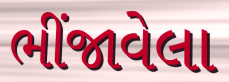
ભીંજાવેલા